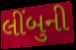
લીંબુની